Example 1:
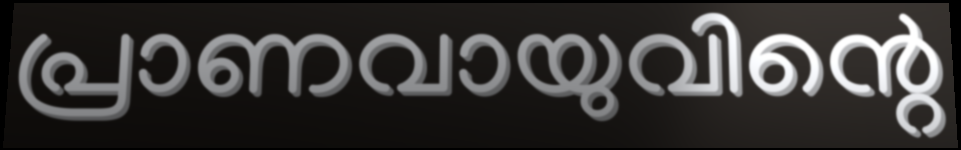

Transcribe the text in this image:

പ്രാണവായുവിന്റെ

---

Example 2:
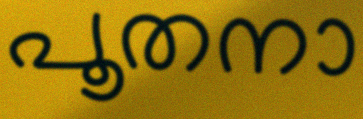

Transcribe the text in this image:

പൂതനാ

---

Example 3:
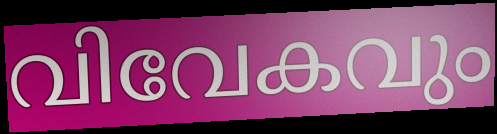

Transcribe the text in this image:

വിവേകവും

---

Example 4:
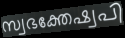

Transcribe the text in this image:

സ്വഭക്തേഷ്വപി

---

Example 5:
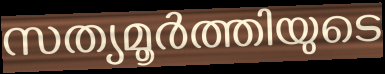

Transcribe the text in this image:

സത്യമൂർത്തിയുടെ